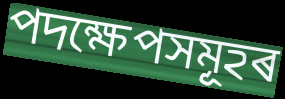
পদক্ষেপসমূহৰ